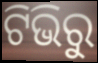
ଟିଭିରୁ